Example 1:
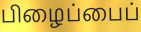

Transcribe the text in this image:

பிழைப்பைப்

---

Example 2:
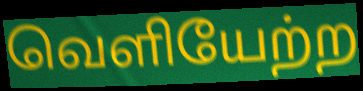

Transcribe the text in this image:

வெளியேற்ற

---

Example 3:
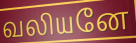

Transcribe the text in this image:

வலியனே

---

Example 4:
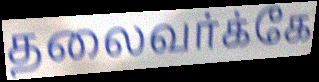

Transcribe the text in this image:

தலைவர்க்கே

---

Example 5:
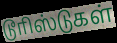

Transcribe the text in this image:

டூரிஸ்டுகள்